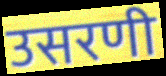
उसरणी